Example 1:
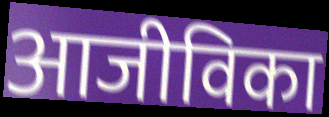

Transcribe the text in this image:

आजीविका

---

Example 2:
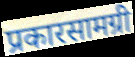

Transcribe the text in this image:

प्रकारसामग्री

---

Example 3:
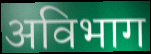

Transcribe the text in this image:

अविभाग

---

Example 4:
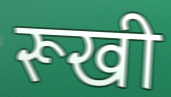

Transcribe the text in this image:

रूखी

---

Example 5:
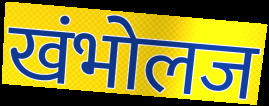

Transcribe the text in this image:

खंभोलज